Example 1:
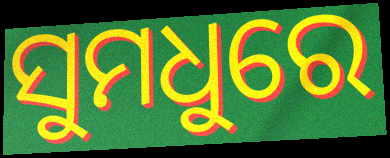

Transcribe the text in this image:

ସୁମଧୁରେ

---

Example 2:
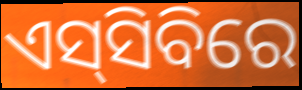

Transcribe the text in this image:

ଏସ୍‌ସିବିରେ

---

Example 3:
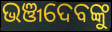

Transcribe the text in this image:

ଭଞ୍ଜଦେବଙ୍କୁ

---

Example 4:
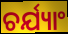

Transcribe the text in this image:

ଚର୍ଯ୍ୟାଂ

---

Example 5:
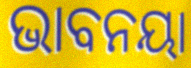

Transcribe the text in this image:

ଭାବନୟା